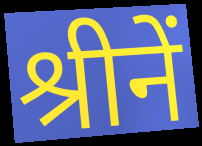
श्रीनें